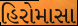
હિરોમાસા